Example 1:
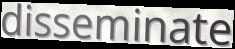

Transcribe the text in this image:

disseminate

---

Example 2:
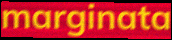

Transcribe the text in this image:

marginata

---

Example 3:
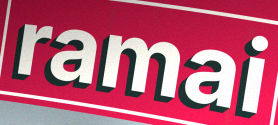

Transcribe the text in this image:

ramai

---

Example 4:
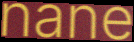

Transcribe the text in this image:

nane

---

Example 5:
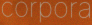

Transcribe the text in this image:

corpora